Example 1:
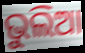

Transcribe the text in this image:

ଭୁଲିଆ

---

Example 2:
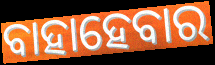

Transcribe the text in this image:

ବାହାହେବାର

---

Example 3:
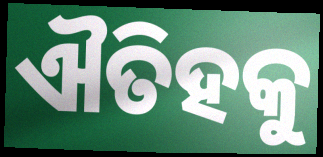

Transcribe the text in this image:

ଐତିହକୁ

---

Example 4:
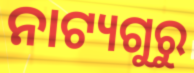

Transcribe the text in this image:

ନାଟ୍ୟଗୁରୁ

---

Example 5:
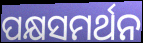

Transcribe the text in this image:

ପକ୍ଷସମର୍ଥନ